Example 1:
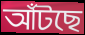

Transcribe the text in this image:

আঁটছে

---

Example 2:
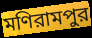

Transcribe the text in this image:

মণিরামপুর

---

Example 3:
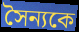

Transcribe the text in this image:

সৈন্যকে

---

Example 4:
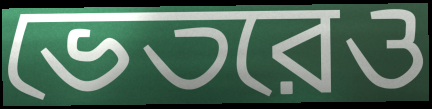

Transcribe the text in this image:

ভেতরেও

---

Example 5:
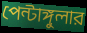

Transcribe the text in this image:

পেন্টাঙ্গুলার